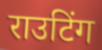
राउटिंग